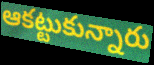
ఆకట్టుకున్నారు